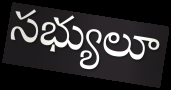
సభ్యులూ